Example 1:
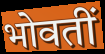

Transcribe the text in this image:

भोवतीं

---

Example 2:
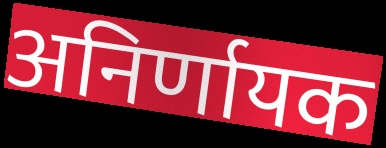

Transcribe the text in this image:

अनिर्णायक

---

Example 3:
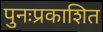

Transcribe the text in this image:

पुनःप्रकाशित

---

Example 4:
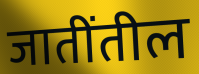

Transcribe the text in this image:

जातींतील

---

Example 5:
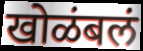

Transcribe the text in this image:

खोळंबलं